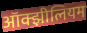
ऑक्झीलियम